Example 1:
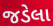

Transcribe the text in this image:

જડેલા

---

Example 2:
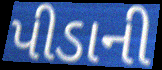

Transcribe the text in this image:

પીડાની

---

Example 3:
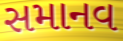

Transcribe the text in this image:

સમાનવ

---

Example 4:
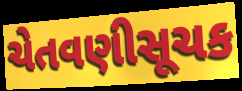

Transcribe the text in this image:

ચેતવણીસૂચક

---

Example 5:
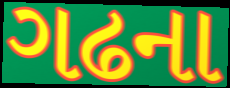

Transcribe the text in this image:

ગઢના